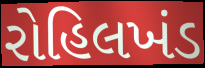
રોહિલખંડ